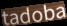
tadoba